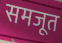
समजूत